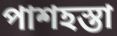
পাশহস্তা